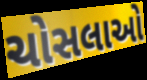
ચોસલાઓ